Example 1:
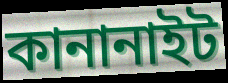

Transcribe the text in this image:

কানানাইট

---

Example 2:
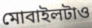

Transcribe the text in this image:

মোবাইলটাও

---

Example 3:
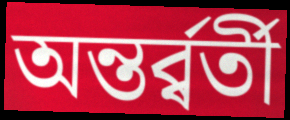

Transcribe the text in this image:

অন্তর্র্বর্তী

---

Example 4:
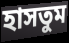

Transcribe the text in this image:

হাসতুম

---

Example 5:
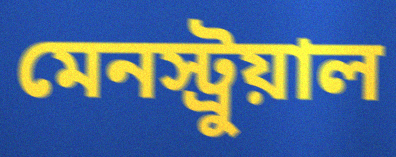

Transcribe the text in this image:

মেনস্ট্রুয়াল